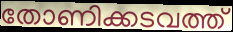
തോണിക്കടവത്ത്